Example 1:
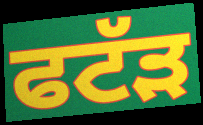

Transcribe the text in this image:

ਫਟੱੜ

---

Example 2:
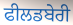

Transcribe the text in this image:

ਫੀਲਡਬੇਰੀ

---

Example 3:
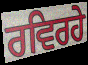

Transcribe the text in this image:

ਰਵਿਰਹੇ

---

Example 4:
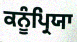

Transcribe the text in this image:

ਕਨੂੰਪ੍ਰਿਯਾ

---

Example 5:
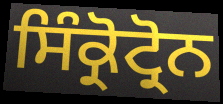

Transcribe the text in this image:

ਸਿੰਕ੍ਰੋਟ੍ਰੋਨ